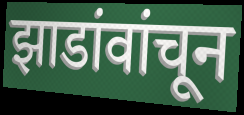
झाडांवांचून